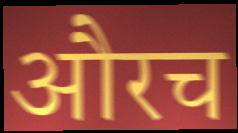
औरच